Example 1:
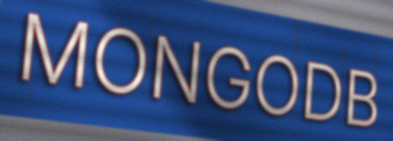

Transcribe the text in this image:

MONGODB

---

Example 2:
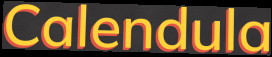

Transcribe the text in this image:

Calendula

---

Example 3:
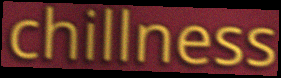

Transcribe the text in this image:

chillness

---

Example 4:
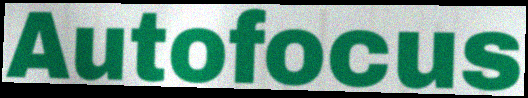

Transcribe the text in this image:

Autofocus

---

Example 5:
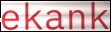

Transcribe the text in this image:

ekank